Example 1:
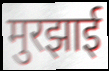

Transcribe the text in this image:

मुरझाई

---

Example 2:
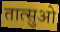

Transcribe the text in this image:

तात्सुओ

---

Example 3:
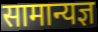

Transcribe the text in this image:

सामान्यज्ञ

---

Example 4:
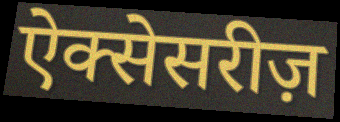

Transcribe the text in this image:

ऐक्सेसरीज़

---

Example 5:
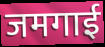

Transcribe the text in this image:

जमगाई